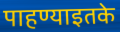
पाहण्याइतके